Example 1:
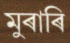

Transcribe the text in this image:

মুৰাৰি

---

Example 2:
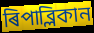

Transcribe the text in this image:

ৰিপাব্লিকান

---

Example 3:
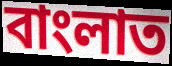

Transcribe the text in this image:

বাংলাত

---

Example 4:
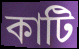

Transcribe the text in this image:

কাটি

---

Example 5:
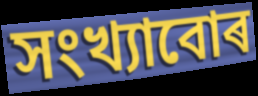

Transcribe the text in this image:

সংখ্যাবোৰ